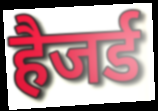
हैजर्ड